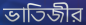
ভাতিজীর